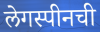
लेगस्पीनची